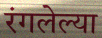
रंगलेल्या